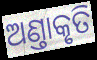
ଅଣ୍ତାକୃତି